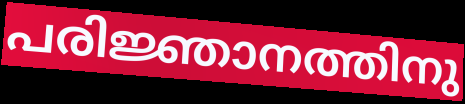
പരിജ്ഞാനത്തിനു